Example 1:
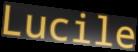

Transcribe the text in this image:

Lucile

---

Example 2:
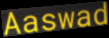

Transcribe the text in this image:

Aaswad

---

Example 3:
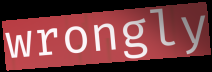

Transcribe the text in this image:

wrongly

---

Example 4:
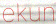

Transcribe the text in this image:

ekun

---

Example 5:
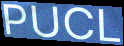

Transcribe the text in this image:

PUCL